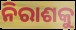
ନିରାଶକୁ